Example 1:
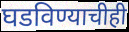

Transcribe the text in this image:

घडविण्याचीही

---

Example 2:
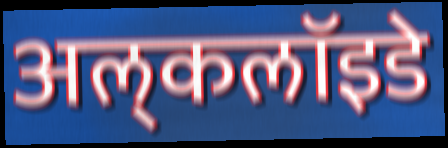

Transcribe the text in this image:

अल्कलॉइडे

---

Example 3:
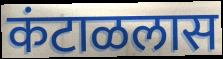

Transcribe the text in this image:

कंटाळलास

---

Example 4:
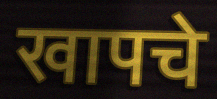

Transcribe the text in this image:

खापचे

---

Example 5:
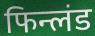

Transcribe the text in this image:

फिन्लंड